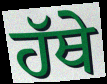
ਹੱਥੇ